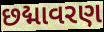
છદ્માવરણ